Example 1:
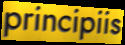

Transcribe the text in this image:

principiis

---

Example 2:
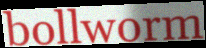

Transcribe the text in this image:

bollworm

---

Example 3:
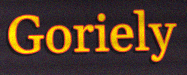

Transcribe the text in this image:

Goriely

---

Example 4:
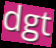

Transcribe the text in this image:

dgt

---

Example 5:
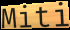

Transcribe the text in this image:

Miti